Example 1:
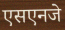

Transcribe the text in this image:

एसएनजे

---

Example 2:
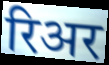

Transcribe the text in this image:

रिअर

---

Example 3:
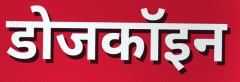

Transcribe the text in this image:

डोजकॉइन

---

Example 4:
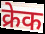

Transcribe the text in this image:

क्रेक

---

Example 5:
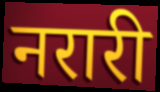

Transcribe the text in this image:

नरारी